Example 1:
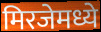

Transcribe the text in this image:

मिरजेमध्ये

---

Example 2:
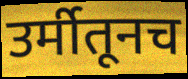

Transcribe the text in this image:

उर्मीतूनच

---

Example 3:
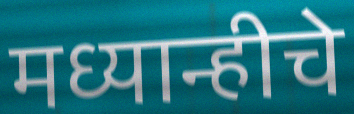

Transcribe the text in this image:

मध्यान्हीचे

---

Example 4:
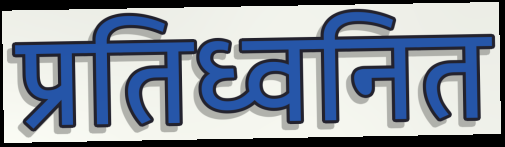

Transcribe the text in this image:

प्रतिध्वनित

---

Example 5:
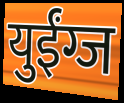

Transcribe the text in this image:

युईंग्ज